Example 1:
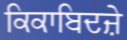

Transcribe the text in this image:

ਕਿਕਾਬਿਦਜ਼ੇ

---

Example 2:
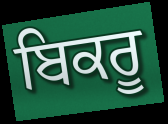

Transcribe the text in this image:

ਬਿਕਰੂ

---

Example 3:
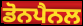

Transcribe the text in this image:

ਡੋਨਪੈਨਲ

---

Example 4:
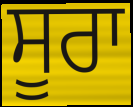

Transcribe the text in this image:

ਸੂਰਾ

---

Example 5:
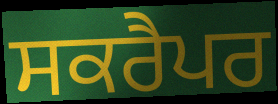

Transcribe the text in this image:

ਸਕਰੈਪਰ